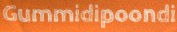
Gummidipoondi